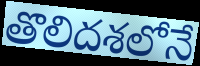
తొలిదశలోనే